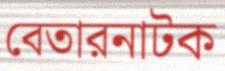
বেতারনাটক